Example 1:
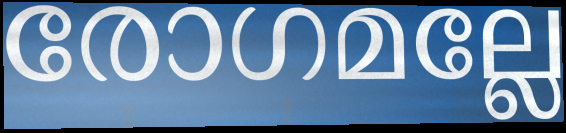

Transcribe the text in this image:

രോഗമല്ലേ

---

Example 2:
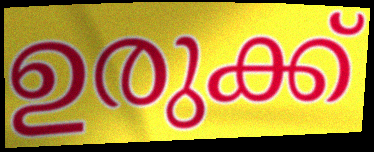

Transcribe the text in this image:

ഉരുക്ക്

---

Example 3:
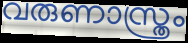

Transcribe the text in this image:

വരുണാസ്ത്രം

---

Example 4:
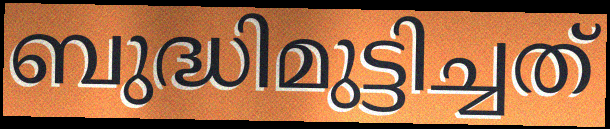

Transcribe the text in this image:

ബുദ്ധിമുട്ടിച്ചത്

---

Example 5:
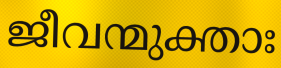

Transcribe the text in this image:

ജീവന്മുക്താഃ